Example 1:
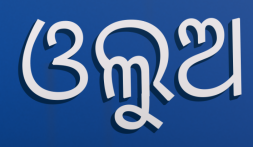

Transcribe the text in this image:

ଓଲୁଅ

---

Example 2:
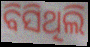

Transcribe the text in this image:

ବିସିଥିଲି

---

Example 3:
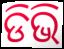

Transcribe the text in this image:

ଡିଭି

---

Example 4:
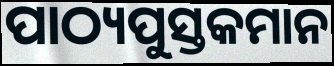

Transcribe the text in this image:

ପାଠ୍ୟପୁସ୍ତକମାନ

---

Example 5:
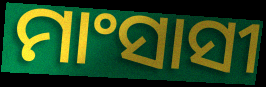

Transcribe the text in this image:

ମାଂସାସୀ